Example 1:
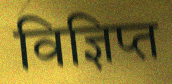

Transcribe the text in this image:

विज्ञिप्त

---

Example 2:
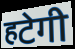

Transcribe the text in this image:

हटेगी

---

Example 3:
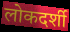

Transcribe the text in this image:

लोकदर्शी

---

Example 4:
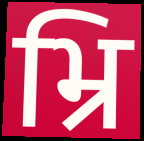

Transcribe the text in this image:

भ्रि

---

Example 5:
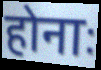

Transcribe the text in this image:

होनाः